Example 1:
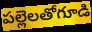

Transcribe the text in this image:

పల్లెలతోగూడి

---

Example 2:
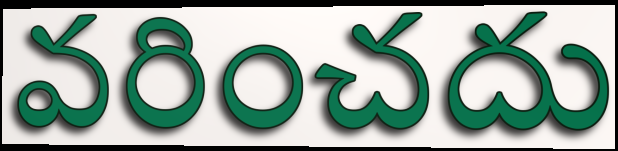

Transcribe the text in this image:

వరించదు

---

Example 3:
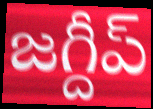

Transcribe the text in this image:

జగ్దీప్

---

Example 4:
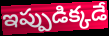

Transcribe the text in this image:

ఇప్పుడిక్కడే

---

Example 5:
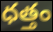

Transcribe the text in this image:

ధత్తం